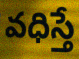
వధిస్తే